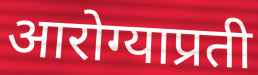
आरोग्याप्रती